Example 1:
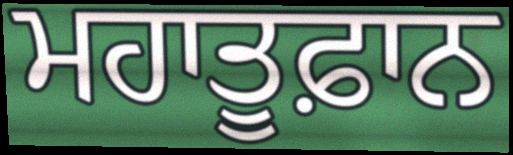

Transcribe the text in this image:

ਮਹਾਤੂਫ਼ਾਨ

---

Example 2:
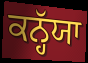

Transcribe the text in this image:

ਕਨ੍ਹੱਯਾ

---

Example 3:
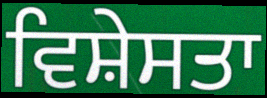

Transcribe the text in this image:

ਵਿਸ਼ੇਸਤਾ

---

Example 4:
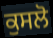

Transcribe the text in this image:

ਕੁਸਲੋ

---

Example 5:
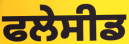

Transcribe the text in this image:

ਫਲੇਸੀਡ